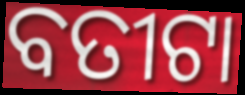
ବତୀଟା